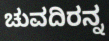
ಚುವದಿರನ್ನ